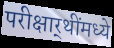
परीक्षार्थींमध्ये